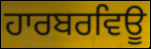
ਹਾਰਬਰਵਿਊ